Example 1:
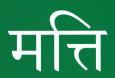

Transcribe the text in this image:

मत्ति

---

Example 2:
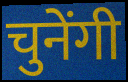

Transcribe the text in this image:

चुनेंगी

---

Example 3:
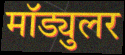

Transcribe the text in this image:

मॉड्युलर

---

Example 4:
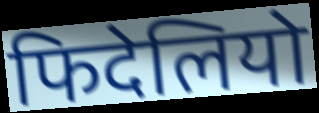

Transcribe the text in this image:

फिदेलियो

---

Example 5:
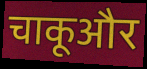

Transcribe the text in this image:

चाकूऔर